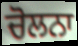
ਚੋਲਨਾ